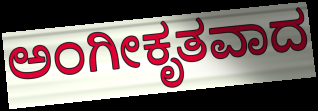
ಅಂಗೀಕೃತವಾದ